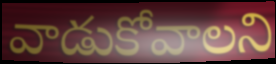
వాడుకోవాలని